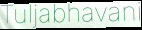
Tuljabhavani